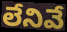
లేనివే